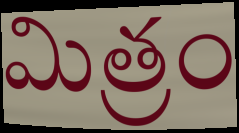
మిత్రం